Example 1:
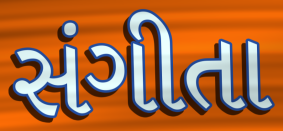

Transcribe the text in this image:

સંગીતા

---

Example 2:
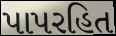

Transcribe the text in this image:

પાપરહિત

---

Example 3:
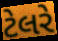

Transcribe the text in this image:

ટેલરે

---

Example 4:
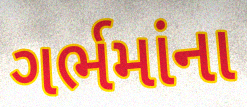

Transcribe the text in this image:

ગર્ભમાંના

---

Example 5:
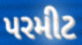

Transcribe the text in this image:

પરમીટ